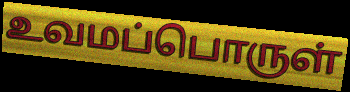
உவமப்பொருள்